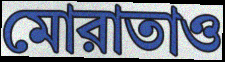
মোরাতাও